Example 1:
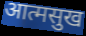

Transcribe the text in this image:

आत्मसुख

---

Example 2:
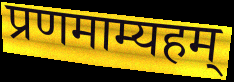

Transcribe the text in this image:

प्रणमाम्यहम्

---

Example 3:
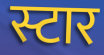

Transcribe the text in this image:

स्‍टार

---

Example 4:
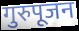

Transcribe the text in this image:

गुरुपूजन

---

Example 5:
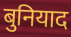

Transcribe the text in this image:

बुनियाद